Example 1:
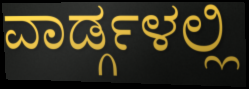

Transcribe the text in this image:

ವಾರ್ಡ್ಗಳಲ್ಲಿ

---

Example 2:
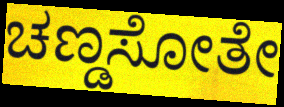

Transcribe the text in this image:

ಚಣ್ಡಸೋತೇ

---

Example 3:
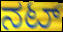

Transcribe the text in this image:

ನಟ್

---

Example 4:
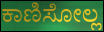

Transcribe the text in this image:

ಕಾಣಿಸೋಲ್ಲ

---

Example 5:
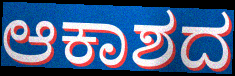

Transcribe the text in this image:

ಆಕಾಶದ